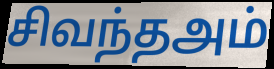
சிவந்தஅம்